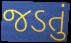
જડતું